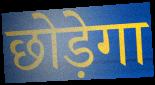
छोड़ेगा